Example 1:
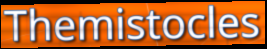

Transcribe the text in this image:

Themistocles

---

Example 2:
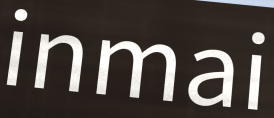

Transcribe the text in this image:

inmai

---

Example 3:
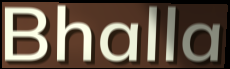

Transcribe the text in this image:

Bhalla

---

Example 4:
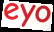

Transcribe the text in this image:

eyo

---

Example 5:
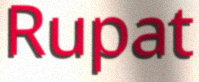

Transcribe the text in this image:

Rupat